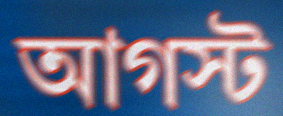
আগস্ট